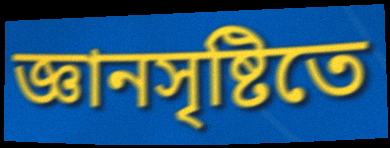
জ্ঞানসৃষ্টিতে